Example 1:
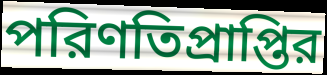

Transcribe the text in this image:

পরিণতিপ্রাপ্তির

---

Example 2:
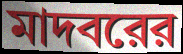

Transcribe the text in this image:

মাদবরের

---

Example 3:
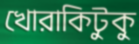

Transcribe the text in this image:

খোরাকিটুকু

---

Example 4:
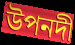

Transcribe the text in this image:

উপনদী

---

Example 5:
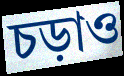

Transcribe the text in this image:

চড়াও